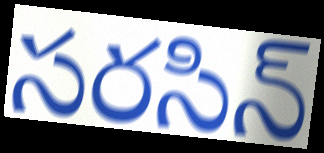
సరసిన్